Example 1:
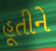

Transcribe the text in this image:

હૂતીને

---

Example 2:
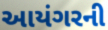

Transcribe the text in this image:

આયંગરની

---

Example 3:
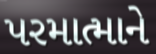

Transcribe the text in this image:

પરમાત્માને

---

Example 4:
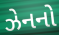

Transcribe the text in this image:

ઝેનનો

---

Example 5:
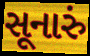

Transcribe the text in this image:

સૂનારું